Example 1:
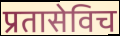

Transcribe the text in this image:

प्रतासेविच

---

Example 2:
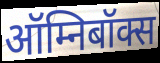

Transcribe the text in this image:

ऑम्निबॉक्स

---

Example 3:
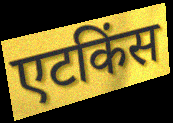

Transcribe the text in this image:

एटकिंस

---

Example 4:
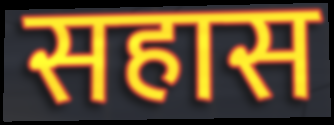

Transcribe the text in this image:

सहास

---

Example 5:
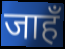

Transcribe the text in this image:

जाहँ